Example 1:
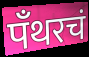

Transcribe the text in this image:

पँथरचं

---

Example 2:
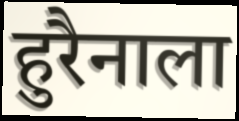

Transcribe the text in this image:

हुरैनाला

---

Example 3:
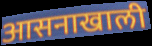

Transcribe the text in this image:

आसनाखाली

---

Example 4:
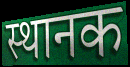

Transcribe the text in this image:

स्थानक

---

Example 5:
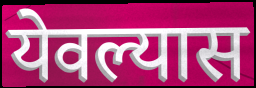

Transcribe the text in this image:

येवल्यास